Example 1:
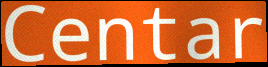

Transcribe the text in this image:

Centar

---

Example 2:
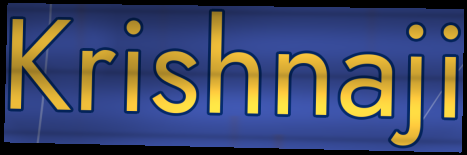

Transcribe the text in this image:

Krishnaji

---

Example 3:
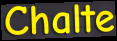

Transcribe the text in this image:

Chalte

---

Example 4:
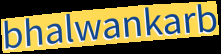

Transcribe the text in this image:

bhalwankarb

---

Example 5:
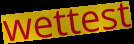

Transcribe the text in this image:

wettest